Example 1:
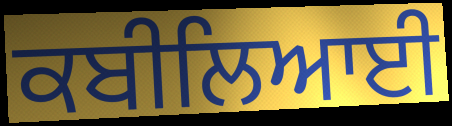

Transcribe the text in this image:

ਕਬੀਲਿਆਈ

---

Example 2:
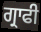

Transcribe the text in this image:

ਗ੍ਰਾਫੀ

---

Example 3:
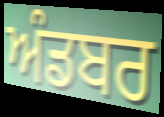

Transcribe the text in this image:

ਅੰਡਬਰ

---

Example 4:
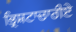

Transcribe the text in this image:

ਭ੍ਰਿਸ਼ਟਾਚਾਰੀਏ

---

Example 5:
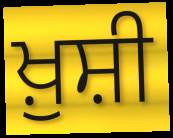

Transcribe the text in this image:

ਖ਼ੁਸ਼ੀ